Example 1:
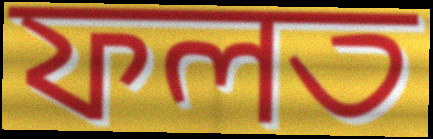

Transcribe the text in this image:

ফলত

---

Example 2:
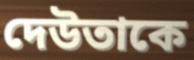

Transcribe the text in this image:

দেউতাকে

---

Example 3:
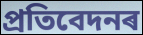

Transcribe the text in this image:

প্ৰতিবেদনৰ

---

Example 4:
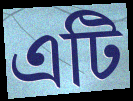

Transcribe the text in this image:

এটি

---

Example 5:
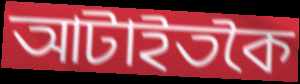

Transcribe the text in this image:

আটাইতকৈ